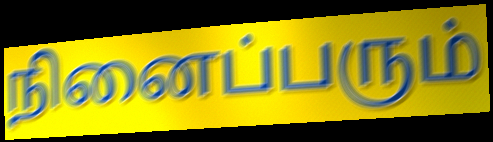
நினைப்பரும்